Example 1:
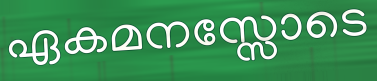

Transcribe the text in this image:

ഏകമനസ്സോടെ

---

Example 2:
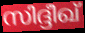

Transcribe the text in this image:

സിദ്ദീഖ്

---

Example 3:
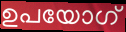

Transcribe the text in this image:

ഉപയോഗ്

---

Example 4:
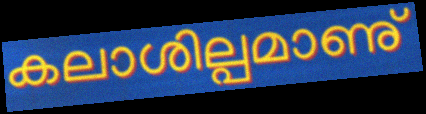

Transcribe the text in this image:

കലാശില്പമാണു്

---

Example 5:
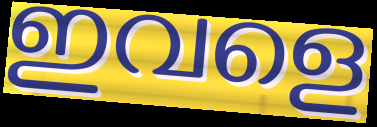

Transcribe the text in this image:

ഇവളെ